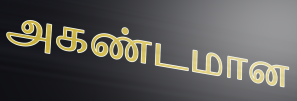
அகண்டமான